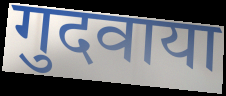
गुदवाया